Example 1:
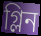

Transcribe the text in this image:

গ্লিন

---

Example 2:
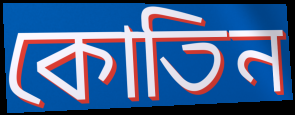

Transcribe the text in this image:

কোতিন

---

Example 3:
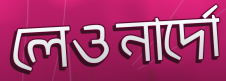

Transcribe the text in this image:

লেওনার্দো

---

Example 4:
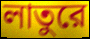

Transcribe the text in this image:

লাতুরে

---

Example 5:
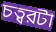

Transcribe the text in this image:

চত্বরটা